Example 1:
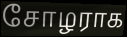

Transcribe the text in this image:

சோழராக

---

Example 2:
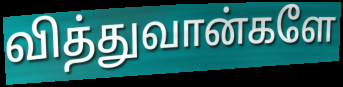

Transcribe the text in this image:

வித்துவான்களே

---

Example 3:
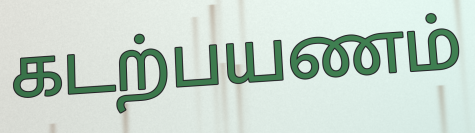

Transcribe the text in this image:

கடற்பயணம்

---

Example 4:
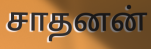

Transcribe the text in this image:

சாதனன்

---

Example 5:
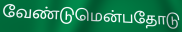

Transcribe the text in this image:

வேண்டுமென்பதோடு